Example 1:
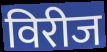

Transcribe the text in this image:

विरीज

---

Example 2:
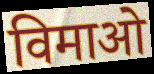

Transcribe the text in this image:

विमाओ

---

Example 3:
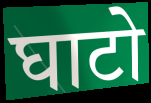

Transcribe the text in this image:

घाटो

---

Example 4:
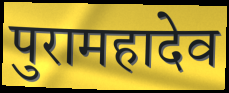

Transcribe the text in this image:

पुरामहादेव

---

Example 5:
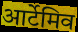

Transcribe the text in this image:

आर्टेमिव